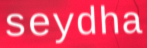
seydha